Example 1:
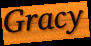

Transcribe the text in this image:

Gracy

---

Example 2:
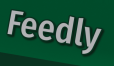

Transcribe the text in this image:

Feedly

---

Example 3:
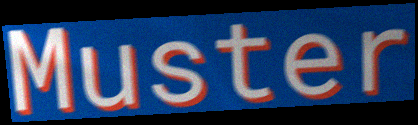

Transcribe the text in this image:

Muster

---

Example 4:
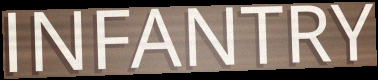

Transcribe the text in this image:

INFANTRY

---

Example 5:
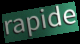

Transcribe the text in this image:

rapide